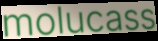
molucass